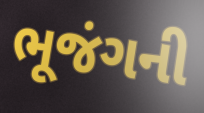
ભૂજંગની